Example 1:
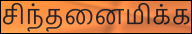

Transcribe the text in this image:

சிந்தனைமிக்க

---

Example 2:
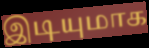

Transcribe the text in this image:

இடியுமாக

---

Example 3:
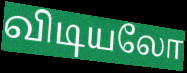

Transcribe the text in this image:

விடியலோ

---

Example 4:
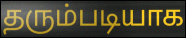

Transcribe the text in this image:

தரும்படியாக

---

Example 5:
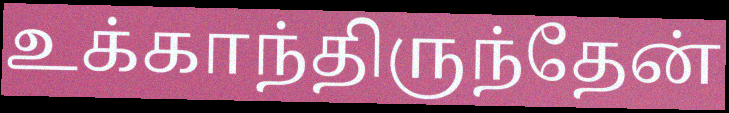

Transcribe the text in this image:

உக்காந்திருந்தேன்